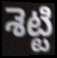
శెట్టి